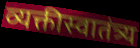
व्यक्तीस्वातंत्र्य